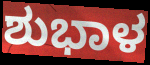
ಶುಭಾಳ